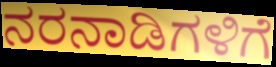
ನರನಾಡಿಗಳಿಗೆ